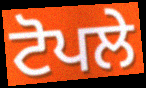
ਟੋਪਲੇ